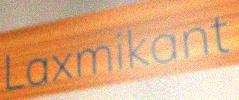
Laxmikant